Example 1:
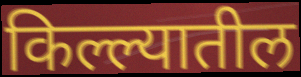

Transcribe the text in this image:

किल्ल्यातील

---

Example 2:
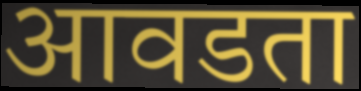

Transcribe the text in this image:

आवडता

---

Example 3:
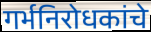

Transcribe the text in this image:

गर्भनिरोधकांचे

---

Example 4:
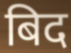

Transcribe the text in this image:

बिद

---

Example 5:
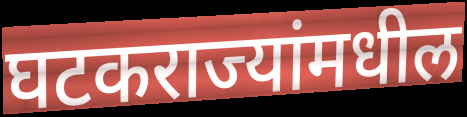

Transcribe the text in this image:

घटकराज्यांमधील